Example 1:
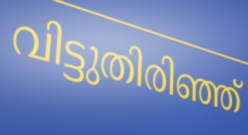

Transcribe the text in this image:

വിട്ടുതിരിഞ്ഞ്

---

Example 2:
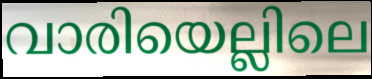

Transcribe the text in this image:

വാരിയെല്ലിലെ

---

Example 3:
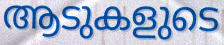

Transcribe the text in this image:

ആടുകളുടെ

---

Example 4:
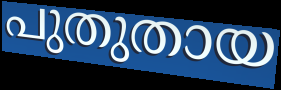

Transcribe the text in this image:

പുതുതായ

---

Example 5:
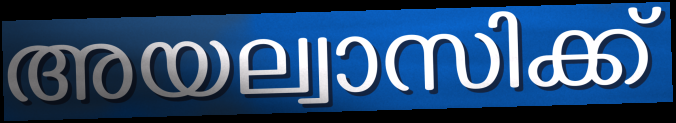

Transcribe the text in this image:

അയല്വാസിക്ക്